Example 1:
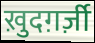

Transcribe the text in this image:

ख़ुदग़र्ज़ी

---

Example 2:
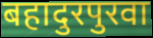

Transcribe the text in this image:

बहादुरपुरवा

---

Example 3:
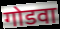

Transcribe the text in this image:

गोडवा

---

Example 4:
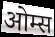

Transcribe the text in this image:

ओम्स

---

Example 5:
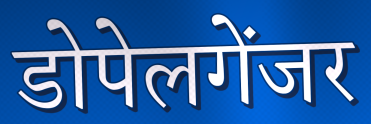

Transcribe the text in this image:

डोपेलगेंजर